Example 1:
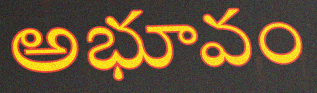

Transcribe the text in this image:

అభూవం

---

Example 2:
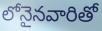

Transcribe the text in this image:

లోనైనవారితో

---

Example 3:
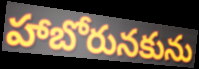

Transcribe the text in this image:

హాబోరునకును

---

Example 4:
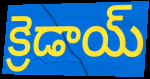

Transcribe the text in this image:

క్రెడాయ్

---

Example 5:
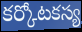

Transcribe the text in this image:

కర్కోటకస్య